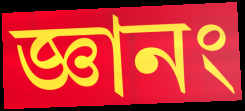
জ্ঞানং